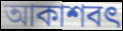
আকাশবৎ